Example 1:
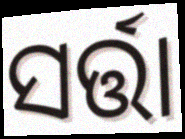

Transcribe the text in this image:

ସର୍ତ୍ତା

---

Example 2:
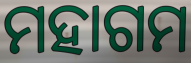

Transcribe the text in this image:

ମହାଗମ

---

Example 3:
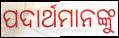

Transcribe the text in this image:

ପଦାର୍ଥମାନଙ୍କୁ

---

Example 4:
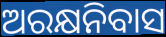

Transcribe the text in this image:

ଅରକ୍ଷନିବାସ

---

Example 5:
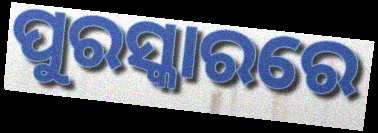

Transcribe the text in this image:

ପୁରସ୍କାରରେ